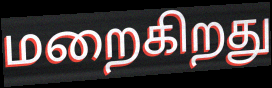
மறைகிறது